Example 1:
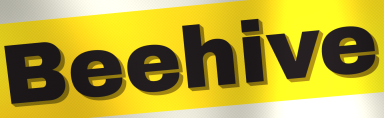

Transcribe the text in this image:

Beehive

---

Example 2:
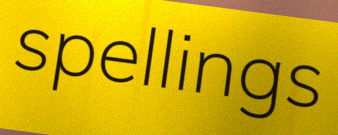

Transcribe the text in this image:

spellings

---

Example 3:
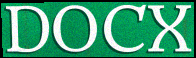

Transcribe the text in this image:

DOCX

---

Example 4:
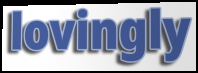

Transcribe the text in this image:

lovingly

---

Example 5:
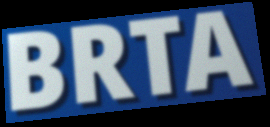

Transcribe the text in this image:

BRTA